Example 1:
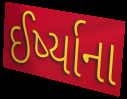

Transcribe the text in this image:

ઈર્ષ્યાના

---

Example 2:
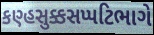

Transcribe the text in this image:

કણ્હસુક્કસપ્પટિભાગે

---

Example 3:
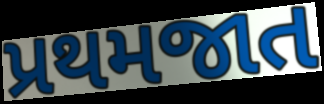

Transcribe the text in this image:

પ્રથમજાત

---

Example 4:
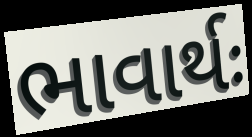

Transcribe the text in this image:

ભાવાર્થઃ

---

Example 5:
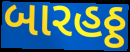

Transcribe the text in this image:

બારહઠ્ઠ